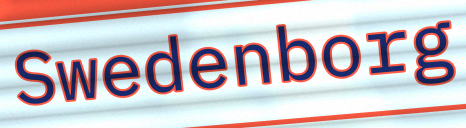
Swedenborg